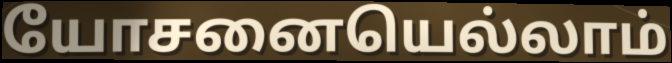
யோசனையெல்லாம்